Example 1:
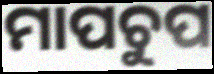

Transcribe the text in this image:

ମାପଚୁପ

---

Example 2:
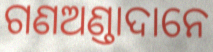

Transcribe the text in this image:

ଗଣଅଣ୍ଡାଦାନେ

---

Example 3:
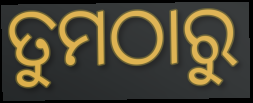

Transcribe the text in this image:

ତୁମଠାରୁ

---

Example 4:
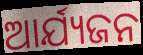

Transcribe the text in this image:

ଆର୍ଯ୍ୟଜନ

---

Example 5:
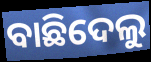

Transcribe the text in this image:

ବାଛିଦେଲୁ